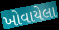
ખોવાયેલા